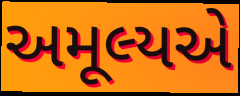
અમૂલ્યએ